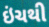
ઇંચથી